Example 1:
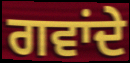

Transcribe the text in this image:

ਗਵਾਂਦੇ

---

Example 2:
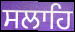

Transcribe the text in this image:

ਸਲਾਹਿ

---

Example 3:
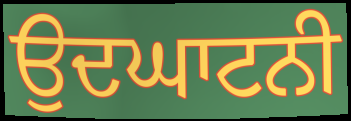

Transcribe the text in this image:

ਉਦਘਾਟਨੀ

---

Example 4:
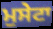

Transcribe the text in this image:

ਮੁਸੇਟਾ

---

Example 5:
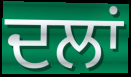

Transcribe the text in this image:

ਦਲਾਂ